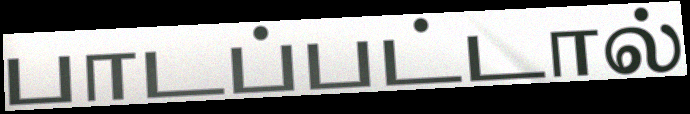
பாடப்பட்டால்